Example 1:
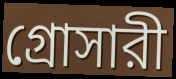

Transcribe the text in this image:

গ্রোসারী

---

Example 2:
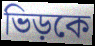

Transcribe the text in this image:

ভিড়কে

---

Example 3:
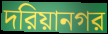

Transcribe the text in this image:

দরিয়ানগর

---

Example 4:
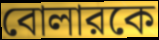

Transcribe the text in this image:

বোলারকে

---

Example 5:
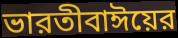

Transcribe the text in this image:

ভারতীবাঈয়ের